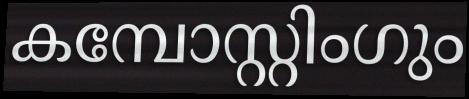
കമ്പോസ്റ്റിംഗും